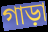
গাড়া